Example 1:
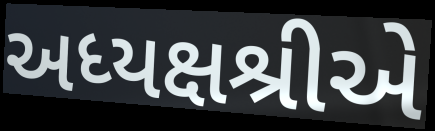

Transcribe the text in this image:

અધ્યક્ષશ્રીએ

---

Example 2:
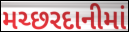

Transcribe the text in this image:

મચ્છરદાનીમાં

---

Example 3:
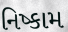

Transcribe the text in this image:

નિષ્કામ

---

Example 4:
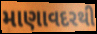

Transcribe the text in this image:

માણાવદરથી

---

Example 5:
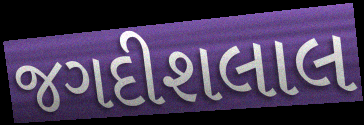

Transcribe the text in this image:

જગદીશલાલ